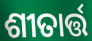
ଶୀତାର୍ତ୍ତ